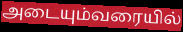
அடையும்வரையில்